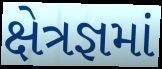
ક્ષેત્રજ્ઞમાં